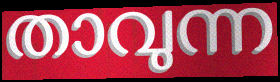
താവുന്ന